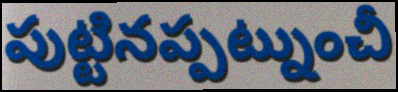
పుట్టినప్పట్నుంచీ